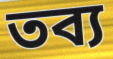
তব্য